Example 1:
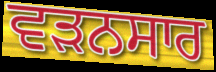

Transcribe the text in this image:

ਵੜਨਸਾਰ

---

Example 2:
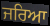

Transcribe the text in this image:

ਜਰਿਆ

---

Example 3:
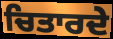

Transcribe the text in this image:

ਚਿਤਾਰਦੇ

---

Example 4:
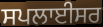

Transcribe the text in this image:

ਸਪਲਾਈਸਰ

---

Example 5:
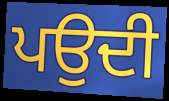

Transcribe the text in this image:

ਪਉਦੀ